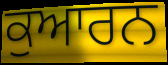
ਕੁਆਰਨ